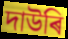
দাউৰি